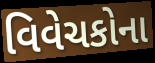
વિવેચકોના